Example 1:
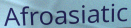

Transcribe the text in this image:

Afroasiatic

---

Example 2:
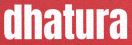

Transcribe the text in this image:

dhatura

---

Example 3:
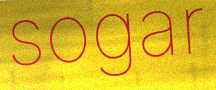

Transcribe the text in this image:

sogar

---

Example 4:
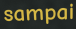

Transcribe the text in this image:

sampai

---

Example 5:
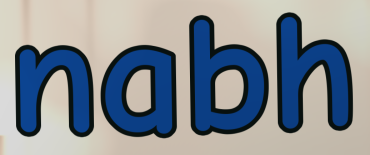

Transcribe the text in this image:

nabh